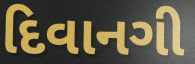
દિવાનગી